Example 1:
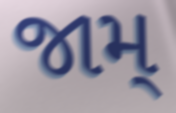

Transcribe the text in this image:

જામ્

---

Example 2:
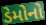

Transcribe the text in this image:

ડેમોનો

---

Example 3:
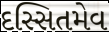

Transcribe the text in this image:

દસ્સિતમેવ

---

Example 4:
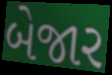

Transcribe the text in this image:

બેજાર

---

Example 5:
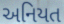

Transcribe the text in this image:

અનિયત